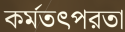
কর্মতৎপরতা